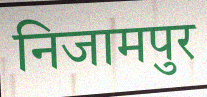
निजामपुर